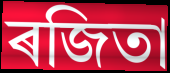
ৰজিতা